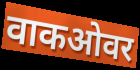
वाकओवर